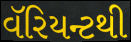
વૅરિયન્ટથી